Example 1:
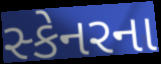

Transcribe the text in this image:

સ્કેનરના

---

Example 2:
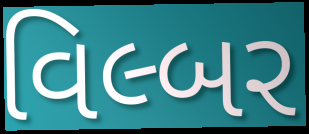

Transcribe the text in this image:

વિલ્બર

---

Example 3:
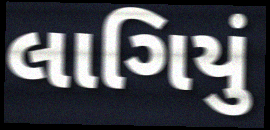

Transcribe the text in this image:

લાગિયું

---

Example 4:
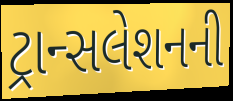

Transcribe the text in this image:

ટ્રાન્સલેશનની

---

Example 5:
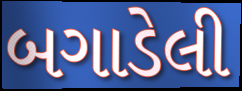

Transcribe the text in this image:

બગાડેલી